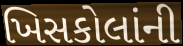
ખિસકોલાંની